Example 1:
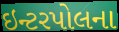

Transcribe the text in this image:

ઇન્ટરપોલના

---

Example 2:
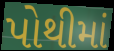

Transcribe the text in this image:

પોથીમાં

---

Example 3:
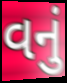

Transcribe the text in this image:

વનું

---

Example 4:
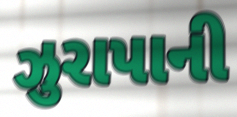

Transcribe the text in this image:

ઝુરાપાની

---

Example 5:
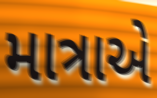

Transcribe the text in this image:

માત્રાએ